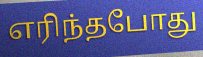
எரிந்தபோது